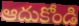
ఆదుకోండి